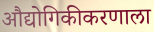
औद्योगिकीकरणाला